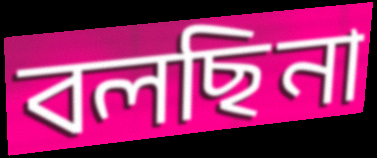
বলছিনা